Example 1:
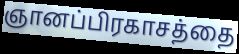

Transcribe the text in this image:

ஞானப்பிரகாசத்தை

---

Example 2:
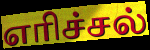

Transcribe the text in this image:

எரிச்சல்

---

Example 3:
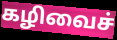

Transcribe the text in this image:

கழிவைச்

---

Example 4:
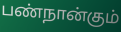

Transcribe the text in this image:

பண்நான்கும்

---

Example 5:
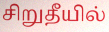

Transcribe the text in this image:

சிறுதீயில்